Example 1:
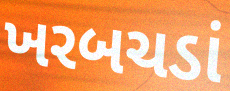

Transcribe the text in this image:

ખરબચડાં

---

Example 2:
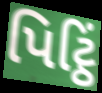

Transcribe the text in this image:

પિટ્ઠિં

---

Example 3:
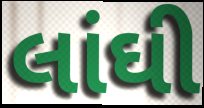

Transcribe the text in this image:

લાંઘી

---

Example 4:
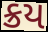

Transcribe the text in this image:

ક્રય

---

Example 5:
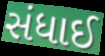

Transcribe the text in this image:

સંધાઈ